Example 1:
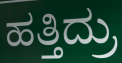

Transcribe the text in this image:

ಹತ್ತಿದ್ರು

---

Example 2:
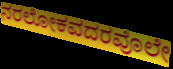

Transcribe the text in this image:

ನರಲೋಕವದರವೊಲೇ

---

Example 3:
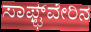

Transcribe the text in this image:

ಸಾಫ್ಟ್‌ವೇರಿನ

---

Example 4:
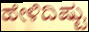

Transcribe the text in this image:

ಹೇಳಿದಿಷ್ಟು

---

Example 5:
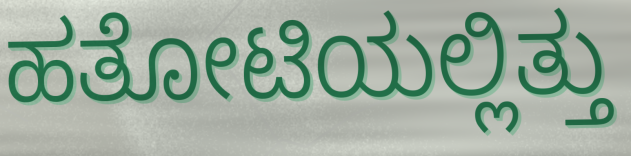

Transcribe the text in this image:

ಹತೋಟಿಯಲ್ಲಿತ್ತು